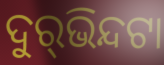
ଦୁର୍‌ଭିନ୍ଦଟା